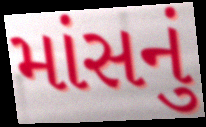
માંસનું